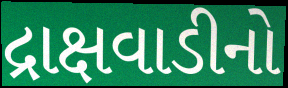
દ્રાક્ષવાડીનો